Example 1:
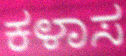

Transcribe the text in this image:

ಕಳಾಸ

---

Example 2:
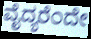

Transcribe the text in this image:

ವೈದ್ಯರೆಂದೇ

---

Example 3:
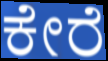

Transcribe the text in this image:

ಕೇರೆ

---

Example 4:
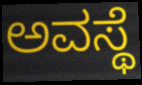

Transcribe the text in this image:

ಅವಸ್ಥೆ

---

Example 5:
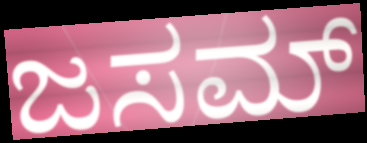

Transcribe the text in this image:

ಜಸಮ್